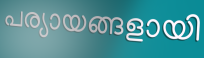
പര്യായങ്ങളായി